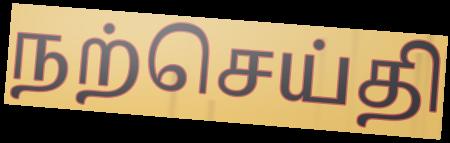
நற்செய்தி